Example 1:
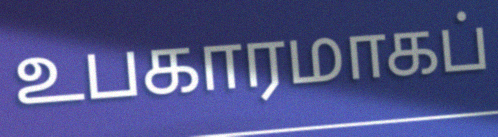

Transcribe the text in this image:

உபகாரமாகப்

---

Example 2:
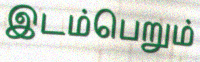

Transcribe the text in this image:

இடம்பெறும்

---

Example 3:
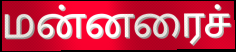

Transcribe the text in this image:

மன்னரைச்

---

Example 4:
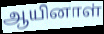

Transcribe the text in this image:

ஆயினாள்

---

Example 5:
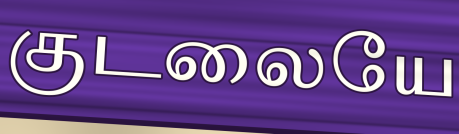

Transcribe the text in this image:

குடலையே